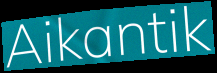
Aikantik